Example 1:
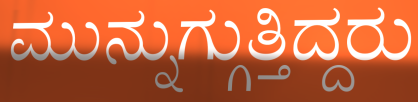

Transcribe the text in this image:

ಮುನ್ನುಗ್ಗುತ್ತಿದ್ದರು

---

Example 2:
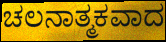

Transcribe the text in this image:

ಚಲನಾತ್ಮಕವಾದ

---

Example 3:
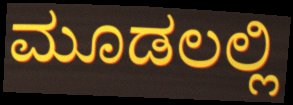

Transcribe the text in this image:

ಮೂಡಲಲ್ಲಿ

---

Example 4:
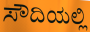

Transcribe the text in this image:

ಸೌದಿಯಲ್ಲಿ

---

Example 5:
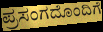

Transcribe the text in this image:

ಪ್ರಸಂಗದೊಂದಿಗೆ